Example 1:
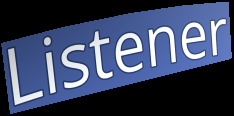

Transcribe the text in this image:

Listener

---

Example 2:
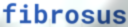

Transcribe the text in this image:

fibrosus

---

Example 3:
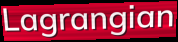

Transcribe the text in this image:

Lagrangian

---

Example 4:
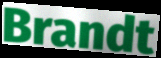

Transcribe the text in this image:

Brandt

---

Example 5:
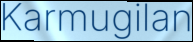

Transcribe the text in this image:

Karmugilan